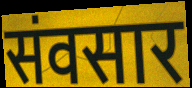
संवसार